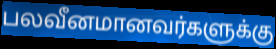
பலவீனமானவர்களுக்கு